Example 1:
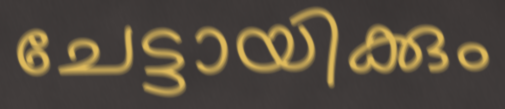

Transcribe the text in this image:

ചേട്ടായിക്കും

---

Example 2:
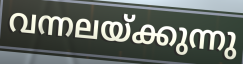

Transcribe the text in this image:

വന്നലയ്ക്കുന്നു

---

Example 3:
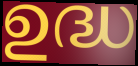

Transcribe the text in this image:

ഉദ്ധ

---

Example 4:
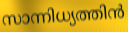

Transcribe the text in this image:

സാന്നിധ്യത്തിൻ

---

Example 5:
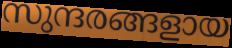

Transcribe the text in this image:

സുന്ദരങ്ങളായ